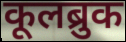
कूलब्रुक